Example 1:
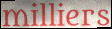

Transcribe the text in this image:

milliers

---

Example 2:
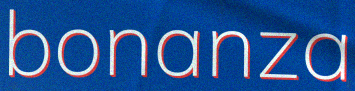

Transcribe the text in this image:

bonanza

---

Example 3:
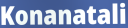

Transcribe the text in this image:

Konanatali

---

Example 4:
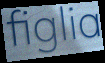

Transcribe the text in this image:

figlia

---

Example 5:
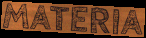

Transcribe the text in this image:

MATERIA